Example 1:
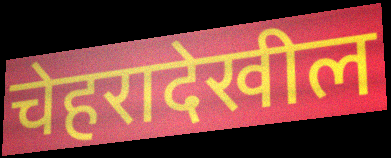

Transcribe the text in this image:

चेहरादेखील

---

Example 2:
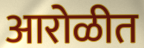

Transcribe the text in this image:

आरोळीत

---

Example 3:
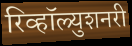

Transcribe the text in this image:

रिव्हॉल्युशनरी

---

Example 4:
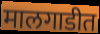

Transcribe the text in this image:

मालगाडीत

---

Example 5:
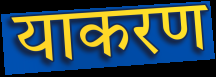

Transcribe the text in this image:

याकरण